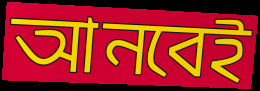
আনবেই